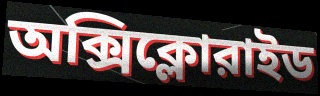
অক্সিক্লোরাইড